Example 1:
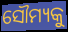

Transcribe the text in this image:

ସୌମ୍ୟକୁ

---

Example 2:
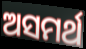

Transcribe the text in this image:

ଅସମର୍ଥ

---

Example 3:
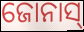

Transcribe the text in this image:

ଜୋନାସ୍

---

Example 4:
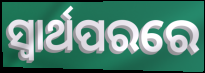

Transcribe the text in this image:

ସ୍ୱାର୍ଥପରରେ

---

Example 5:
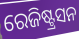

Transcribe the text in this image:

ରେଜିଷ୍ଟ୍ରସନ